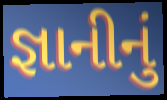
જ્ઞાનીનું